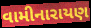
વામીનારાયણ